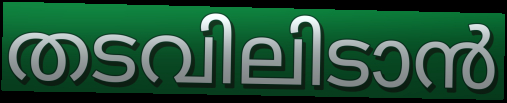
തടവിലിടാൻ